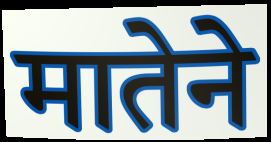
मातेने